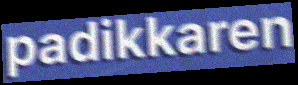
padikkaren